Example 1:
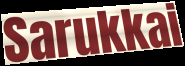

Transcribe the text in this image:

Sarukkai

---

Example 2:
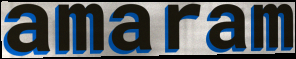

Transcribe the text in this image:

amaram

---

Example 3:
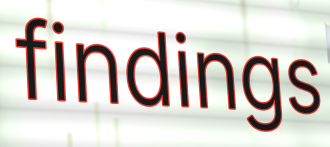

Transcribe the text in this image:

findings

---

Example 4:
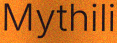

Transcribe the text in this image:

Mythili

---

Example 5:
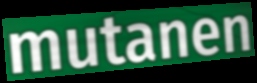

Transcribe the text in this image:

mutanen